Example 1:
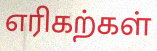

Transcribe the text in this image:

எரிகற்கள்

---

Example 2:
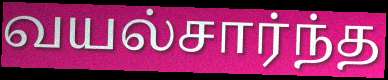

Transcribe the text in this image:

வயல்சார்ந்த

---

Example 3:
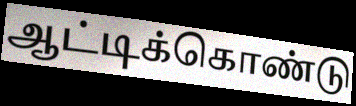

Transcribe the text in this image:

ஆட்டிக்கொண்டு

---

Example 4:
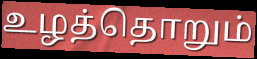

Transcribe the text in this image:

உழத்தொறும்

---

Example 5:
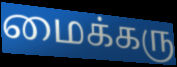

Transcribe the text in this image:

மைக்கரு